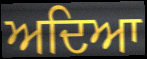
ਅਦਿਆ